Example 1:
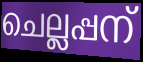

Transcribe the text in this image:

ചെല്ലപ്പന്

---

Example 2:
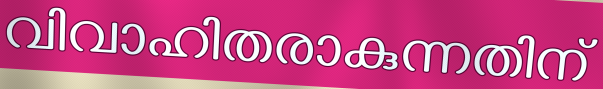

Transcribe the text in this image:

വിവാഹിതരാകുന്നതിന്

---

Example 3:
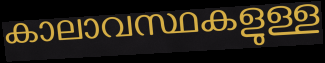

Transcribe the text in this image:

കാലാവസ്ഥകളുള്ള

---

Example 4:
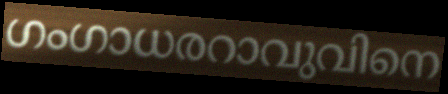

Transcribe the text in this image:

ഗംഗാധരറാവുവിനെ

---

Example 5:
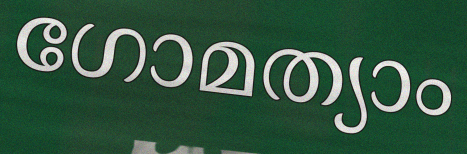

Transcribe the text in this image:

ഗോമത്യാം